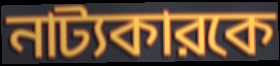
নাট্যকারকে